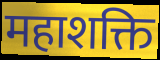
महाशक्ति